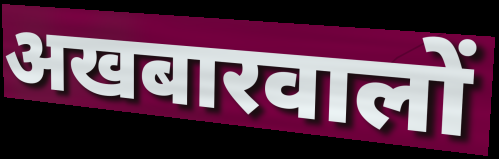
अखबारवालों